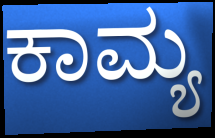
ಕಾಮ್ಯ